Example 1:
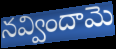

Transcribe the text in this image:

నవ్విందామె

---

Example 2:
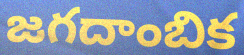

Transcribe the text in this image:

జగదాంబిక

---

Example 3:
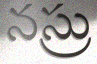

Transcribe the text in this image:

నస్రు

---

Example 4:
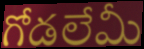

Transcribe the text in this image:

గోడలేమీ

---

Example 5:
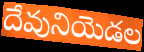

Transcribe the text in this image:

దేవునియెడల